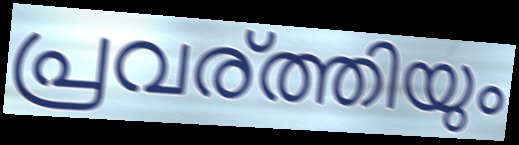
പ്രവര്ത്തിയും